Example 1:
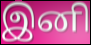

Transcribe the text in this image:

இனி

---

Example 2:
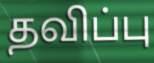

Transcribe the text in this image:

தவிப்பு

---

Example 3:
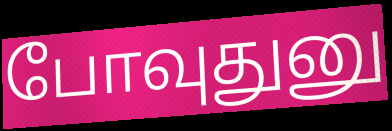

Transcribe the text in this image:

போவுதுனு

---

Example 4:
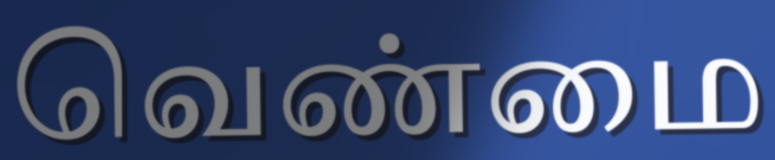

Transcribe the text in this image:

வெண்மை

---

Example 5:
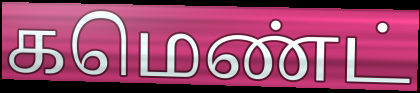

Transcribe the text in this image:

கமெண்ட்